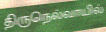
திருநெல்வாயில்